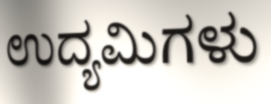
ಉದ್ಯಮಿಗಳು